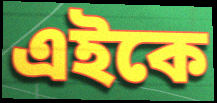
এইকে